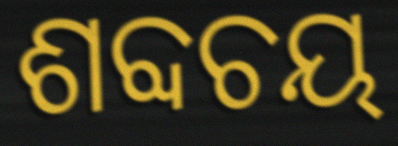
ଶବ୍ଦଚୟ